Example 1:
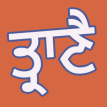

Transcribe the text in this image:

ਤ੍ਰਾਣੈ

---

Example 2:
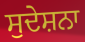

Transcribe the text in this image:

ਸੁਦੇਸ਼ਨਾ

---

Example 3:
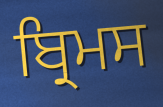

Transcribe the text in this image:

ਬ੍ਰਿਮਸ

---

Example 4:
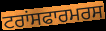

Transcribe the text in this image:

ਟਰਾਂਸਫਾਰਮਰਸ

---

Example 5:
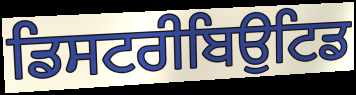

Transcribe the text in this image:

ਡਿਸਟਰੀਬਿਉਟਿਡ